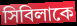
সিবিলাকে